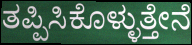
ತಪ್ಪಿಸಿಕೊಳ್ಳುತ್ತೇನೆ